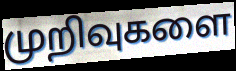
முறிவுகளை